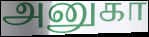
அனுகா